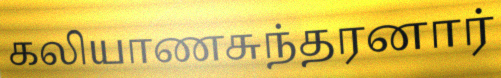
கலியாணசுந்தரனார்